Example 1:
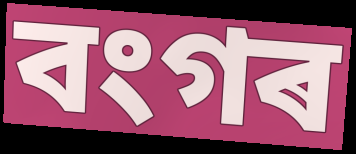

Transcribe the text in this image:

বংগৰ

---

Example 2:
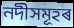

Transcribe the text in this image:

নদীসমূহৰ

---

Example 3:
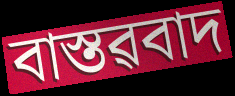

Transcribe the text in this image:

বাস্তৱবাদ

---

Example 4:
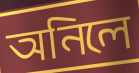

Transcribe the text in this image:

অনিলে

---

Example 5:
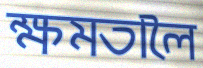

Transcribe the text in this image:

ক্ষমতালৈ